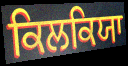
ਕਿਲਕਿਯਾ